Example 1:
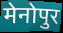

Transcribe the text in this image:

मेनोपुर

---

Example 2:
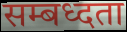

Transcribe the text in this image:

सम्बध्दता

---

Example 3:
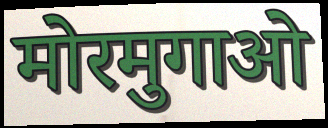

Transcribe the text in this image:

मोरमुगाओ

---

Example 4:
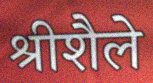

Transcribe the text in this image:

श्रीशैले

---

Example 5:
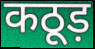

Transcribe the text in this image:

कठूड़